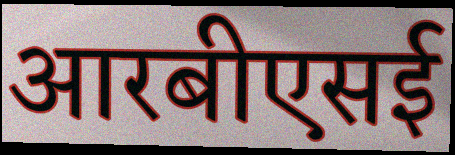
आरबीएसई